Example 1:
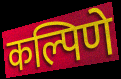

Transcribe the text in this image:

कल्पिणे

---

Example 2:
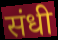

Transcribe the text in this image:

संधी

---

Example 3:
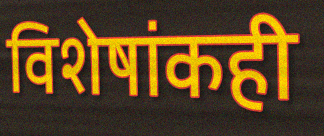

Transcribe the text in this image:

विशेषांकही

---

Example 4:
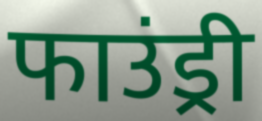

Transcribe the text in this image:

फाउंड्री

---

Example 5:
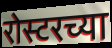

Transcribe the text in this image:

रोस्टरच्या